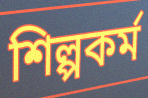
শিল্পকর্ম